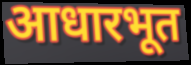
आधारभूत